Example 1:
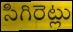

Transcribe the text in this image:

సిగిరెట్లు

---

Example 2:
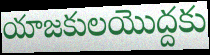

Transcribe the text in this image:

యాజకులయొద్దకు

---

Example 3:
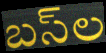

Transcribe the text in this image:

బస్‌ల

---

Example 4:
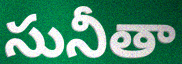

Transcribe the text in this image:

సునీతా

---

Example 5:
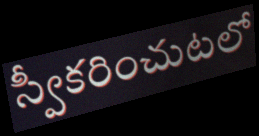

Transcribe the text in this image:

స్వీకరించుటలో